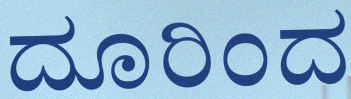
ದೂರಿಂದ